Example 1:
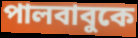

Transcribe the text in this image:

পালবাবুকে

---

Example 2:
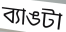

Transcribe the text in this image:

ব্যাঙটা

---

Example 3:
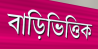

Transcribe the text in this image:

বাড়িভিত্তিক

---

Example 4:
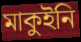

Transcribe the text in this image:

মাকুইনি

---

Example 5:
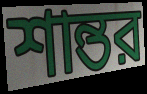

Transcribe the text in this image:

শান্তর